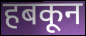
हबकून